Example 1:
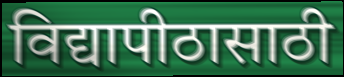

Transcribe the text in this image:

विद्यापीठासाठी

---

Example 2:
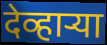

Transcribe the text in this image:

देव्हाऱ्या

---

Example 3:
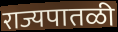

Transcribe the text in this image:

राज्यपातळी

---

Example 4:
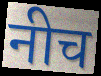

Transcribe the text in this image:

नीच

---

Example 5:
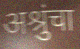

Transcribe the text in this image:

अश्रुंचा